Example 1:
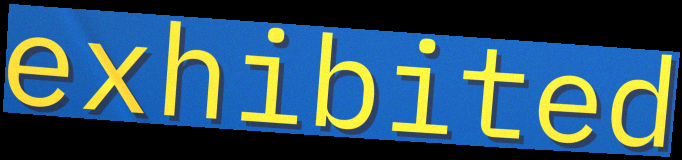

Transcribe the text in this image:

exhibited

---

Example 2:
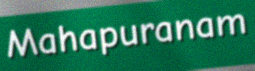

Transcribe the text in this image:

Mahapuranam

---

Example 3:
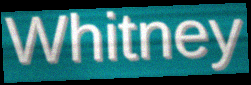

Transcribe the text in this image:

Whitney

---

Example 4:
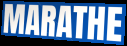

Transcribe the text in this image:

MARATHE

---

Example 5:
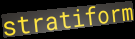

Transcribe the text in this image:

stratiform